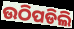
ଉଠିପଡିଲି